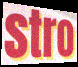
stro